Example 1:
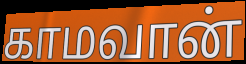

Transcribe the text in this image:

காமவான்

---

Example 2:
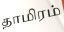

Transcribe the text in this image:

தாமிரம்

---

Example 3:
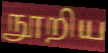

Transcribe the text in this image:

நூறிய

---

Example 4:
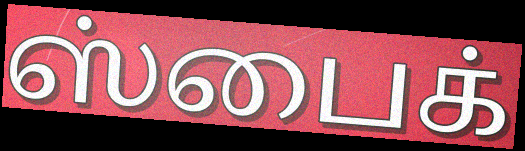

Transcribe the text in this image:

ஸ்பைக்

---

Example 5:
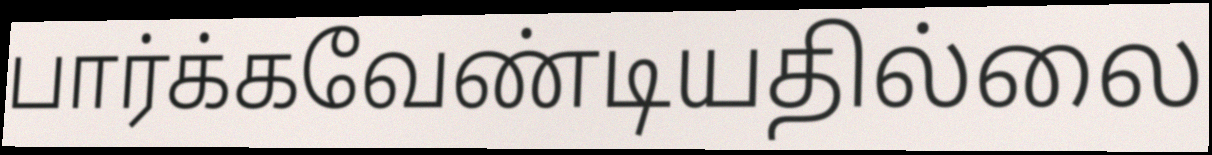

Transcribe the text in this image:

பார்க்கவேண்டியதில்லை